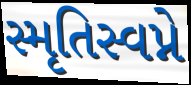
સ્મૃતિસ્વપ્ને